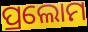
ପ୍ରଲୋମ